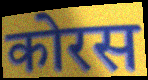
कोरस